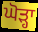
ਘੋੜ੍ਹਾ